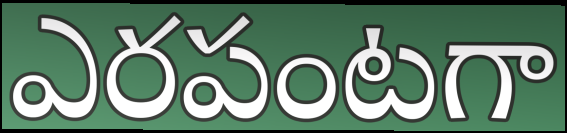
ఎరపంటగా